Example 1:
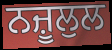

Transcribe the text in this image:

ਨਜ਼ੂਲੁਲ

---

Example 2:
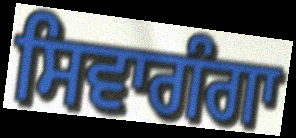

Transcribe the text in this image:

ਸਿਵਾਗੰਗਾ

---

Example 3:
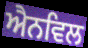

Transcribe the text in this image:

ਐਨਵਿਲ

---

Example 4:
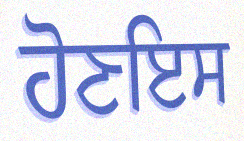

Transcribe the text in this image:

ਹੋਣਇਸ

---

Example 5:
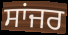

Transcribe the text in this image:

ਸਾਂਜਰ